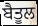
ਬੈਤੂਲ